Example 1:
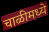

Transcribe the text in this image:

चाळीमध्ये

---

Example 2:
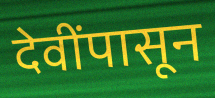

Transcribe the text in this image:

देवींपासून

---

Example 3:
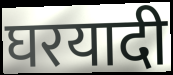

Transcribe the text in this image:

घरयादी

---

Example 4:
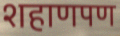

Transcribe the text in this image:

शहाणपण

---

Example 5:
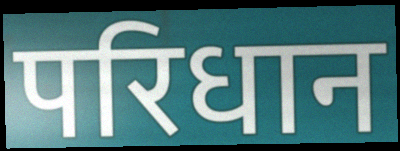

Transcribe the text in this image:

परिधान